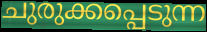
ചുരുക്കപ്പെടുന്ന